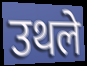
उथले